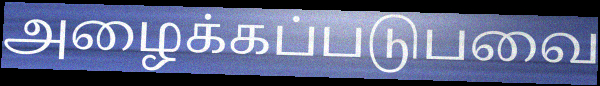
அழைக்கப்படுபவை